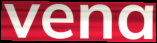
vena